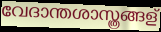
വേദാന്തശാസ്ത്രങ്ങള്